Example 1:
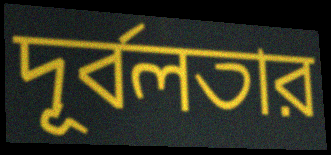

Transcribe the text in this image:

দূর্বলতার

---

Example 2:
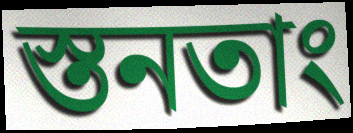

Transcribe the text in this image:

স্তনতাং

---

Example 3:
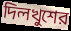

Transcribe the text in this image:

দিলখুশের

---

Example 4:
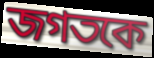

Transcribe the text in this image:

জগতকে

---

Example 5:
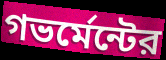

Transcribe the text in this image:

গভর্মেন্টের